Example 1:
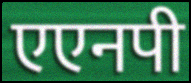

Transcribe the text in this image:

एएनपी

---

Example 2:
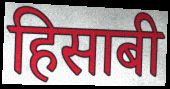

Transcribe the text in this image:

हिसाबी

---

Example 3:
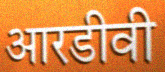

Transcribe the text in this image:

आरडीवी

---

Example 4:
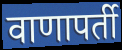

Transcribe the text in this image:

वाणापर्ती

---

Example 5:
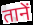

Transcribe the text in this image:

तानें